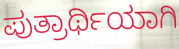
ಪುತ್ರಾರ್ಥಿಯಾಗಿ